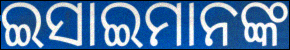
ଇସାଇମାନଙ୍କ